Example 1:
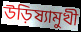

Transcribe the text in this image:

উড়িষ্যামুখী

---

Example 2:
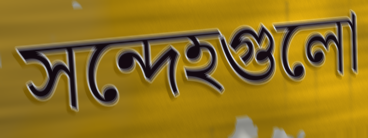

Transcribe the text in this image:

সন্দেহগুলো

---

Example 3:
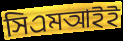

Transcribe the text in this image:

সিএমআইই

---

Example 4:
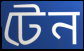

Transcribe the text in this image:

টেন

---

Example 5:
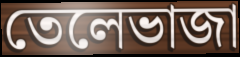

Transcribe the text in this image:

তেলেভাজা